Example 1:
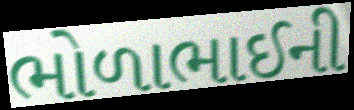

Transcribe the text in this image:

ભોળાભાઈની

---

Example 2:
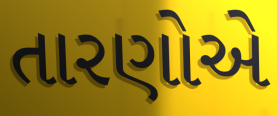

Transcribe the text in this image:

તારણોએ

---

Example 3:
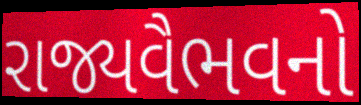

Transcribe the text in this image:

રાજ્યવૈભવનો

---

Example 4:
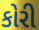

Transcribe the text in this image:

કોરી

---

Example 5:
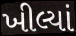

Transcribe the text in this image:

ખીલ્યાં